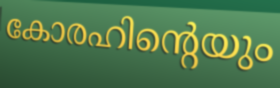
കോരഹിന്റെയും